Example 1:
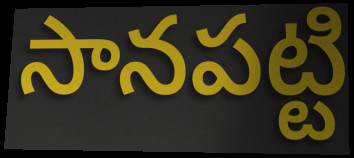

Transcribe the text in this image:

సానపట్టి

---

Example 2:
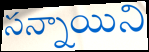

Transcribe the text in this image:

సన్నాయిని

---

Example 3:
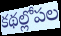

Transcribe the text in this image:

కథల్లోపల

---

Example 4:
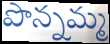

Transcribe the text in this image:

పొన్నమ్మ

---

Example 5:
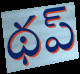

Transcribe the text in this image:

థప్